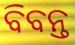
ବିବନ୍ତ